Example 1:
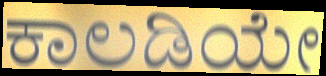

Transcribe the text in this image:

ಕಾಲಡಿಯೇ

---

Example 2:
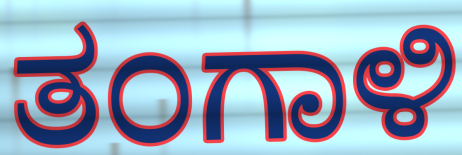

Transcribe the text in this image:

ತಂಗಾಳಿ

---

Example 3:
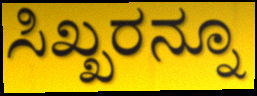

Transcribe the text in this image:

ಸಿಖ್ಖರನ್ನೂ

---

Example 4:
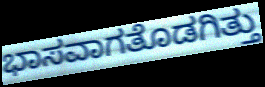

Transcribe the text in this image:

ಭಾಸವಾಗತೊಡಗಿತ್ತು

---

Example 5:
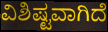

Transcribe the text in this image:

ವಿಶಿಷ್ಟವಾಗಿದೆ